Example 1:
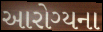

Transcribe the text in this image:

આરોગ્યના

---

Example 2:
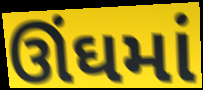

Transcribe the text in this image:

ઊંઘમાં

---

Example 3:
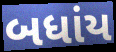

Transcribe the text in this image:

બધાંય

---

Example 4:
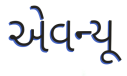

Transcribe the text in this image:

એવન્યૂ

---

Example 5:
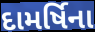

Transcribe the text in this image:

દામર્ષિના